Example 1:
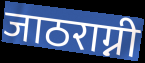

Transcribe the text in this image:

जाठराग्नी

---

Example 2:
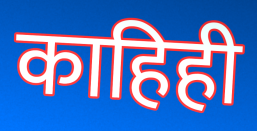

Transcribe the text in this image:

काहिही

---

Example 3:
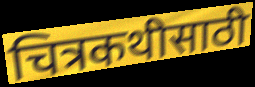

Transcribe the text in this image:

चित्रकथीसाठी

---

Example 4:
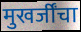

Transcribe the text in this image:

मुखर्जींचा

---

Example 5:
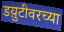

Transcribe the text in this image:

डय़ुटीवरच्या